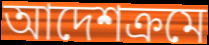
আদেশক্রমে